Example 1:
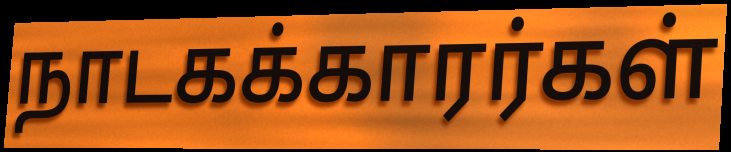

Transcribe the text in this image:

நாடகக்காரர்கள்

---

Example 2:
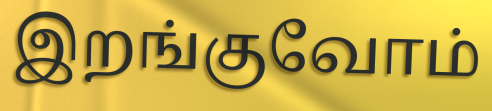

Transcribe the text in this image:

இறங்குவோம்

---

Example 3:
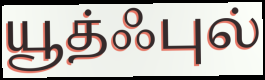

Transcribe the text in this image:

யூத்ஃபுல்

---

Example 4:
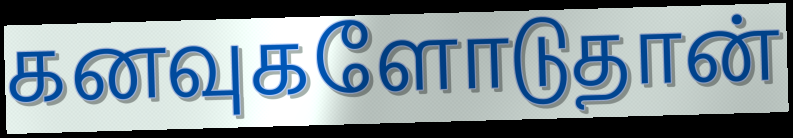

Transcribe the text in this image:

கனவுகளோடுதான்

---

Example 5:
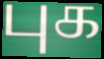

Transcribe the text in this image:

புக